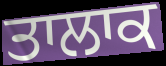
ਤਾਲਾਕ